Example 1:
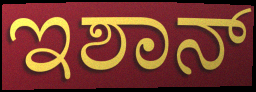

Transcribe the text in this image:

ಇಶಾನ್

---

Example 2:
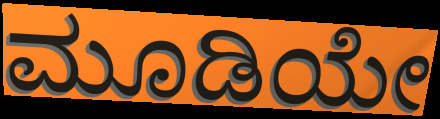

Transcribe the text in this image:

ಮೂಡಿಯೇ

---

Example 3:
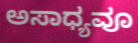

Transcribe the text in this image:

ಅಸಾಧ್ಯವೂ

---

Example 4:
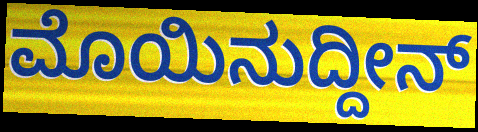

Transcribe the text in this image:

ಮೊಯಿನುದ್ದೀನ್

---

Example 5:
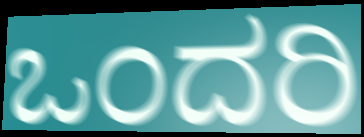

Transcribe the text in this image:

ಒಂದರಿ